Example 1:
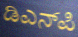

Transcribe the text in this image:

ಡಿಎನ್‌ಪಿ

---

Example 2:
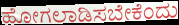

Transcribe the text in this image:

ಹೋಗಲಾಡಿಸಬೇಕೆಂದು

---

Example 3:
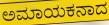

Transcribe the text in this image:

ಅಮಾಯಕನಾದ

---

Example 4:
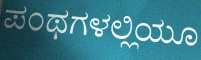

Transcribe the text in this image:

ಪಂಥಗಳಲ್ಲಿಯೂ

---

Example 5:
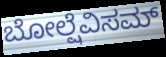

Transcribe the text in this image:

ಬೋಲ್ಷೆವಿಸಮ್